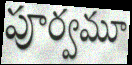
పూర్వమూ